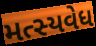
મત્સ્યવેધ